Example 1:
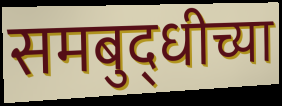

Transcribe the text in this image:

समबुद्धीच्या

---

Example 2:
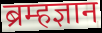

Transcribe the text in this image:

ब्रम्हज्ञान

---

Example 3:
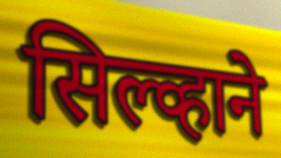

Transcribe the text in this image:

सिल्व्हाने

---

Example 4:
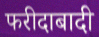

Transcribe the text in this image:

फरीदाबादी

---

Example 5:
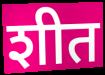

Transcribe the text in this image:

शीत